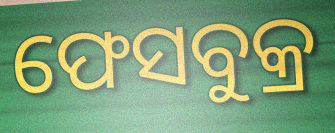
ଫେସବୁକ୍ର